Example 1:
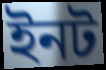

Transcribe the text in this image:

ইনট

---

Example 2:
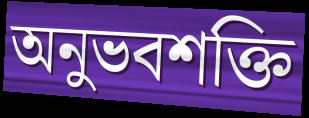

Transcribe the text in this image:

অনুভবশক্তি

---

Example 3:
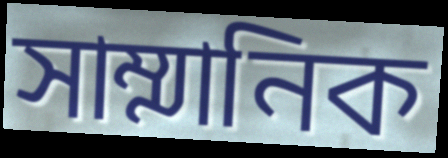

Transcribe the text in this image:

সাম্মানিক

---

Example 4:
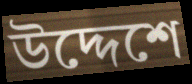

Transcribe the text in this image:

উদ্দেশে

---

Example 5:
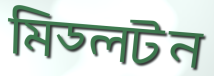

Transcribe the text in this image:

মিড্লটন